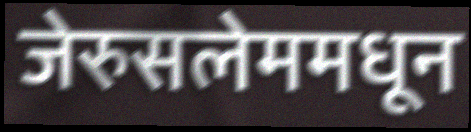
जेरुसलेममधून